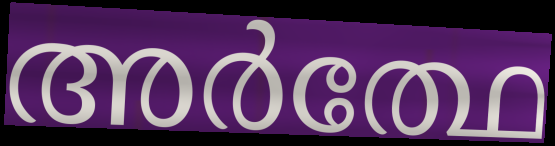
അർത്ഥേ